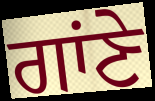
ਗਾਂਣੇ